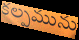
కల్పమును